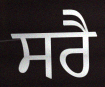
ਸਰੈ